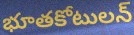
భూతకోటులన్